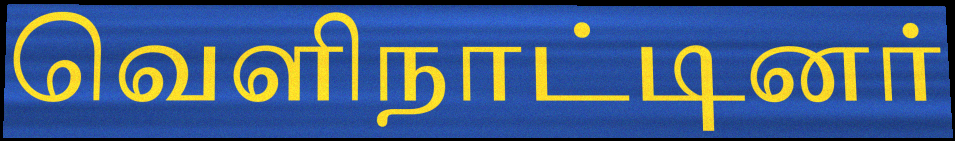
வெளிநாட்டினர்